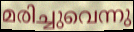
മരിച്ചുവെന്നു